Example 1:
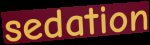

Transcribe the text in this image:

sedation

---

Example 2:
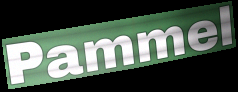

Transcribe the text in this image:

Pammel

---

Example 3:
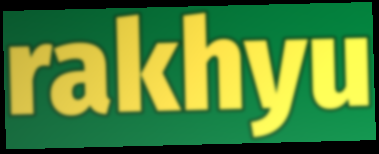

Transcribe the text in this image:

rakhyu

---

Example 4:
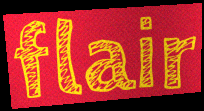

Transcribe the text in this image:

flair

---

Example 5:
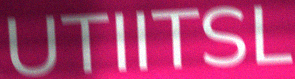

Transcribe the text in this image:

UTIITSL